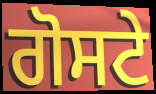
ਗੋਸਟੇ